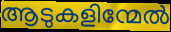
ആടുകളിന്മേൽ